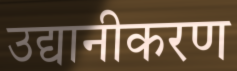
उद्यानीकरण